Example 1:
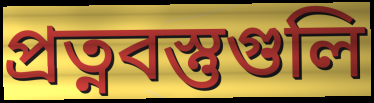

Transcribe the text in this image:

প্রত্নবস্তুগুলি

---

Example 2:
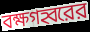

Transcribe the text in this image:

বক্ষগহ্বরের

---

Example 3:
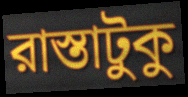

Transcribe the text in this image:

রাস্তাটুকু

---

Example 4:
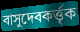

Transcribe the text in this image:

বাসুদেবকর্ত্তৃক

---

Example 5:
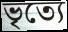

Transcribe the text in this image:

ভৃত্যে